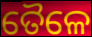
ତୈଳେ